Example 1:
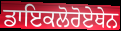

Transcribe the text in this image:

ਡਾਇਕਲੋਰੋਏਥੇਨ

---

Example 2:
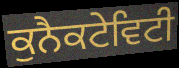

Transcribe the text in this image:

ਕੁਨੈਕਟੇਵਿਟੀ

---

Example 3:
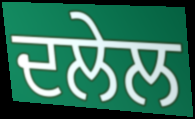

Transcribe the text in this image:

ਦਲੇਲ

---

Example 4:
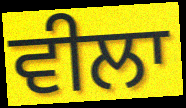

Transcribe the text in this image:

ਵੀਲਾ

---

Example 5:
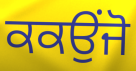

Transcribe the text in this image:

ਕਕਉਂਜੋ